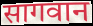
सागवान